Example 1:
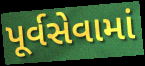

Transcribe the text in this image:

પૂર્વસેવામાં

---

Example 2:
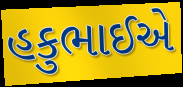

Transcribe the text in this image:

હકુભાઈએ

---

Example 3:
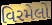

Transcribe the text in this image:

વિરમેલો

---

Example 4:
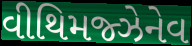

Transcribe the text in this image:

વીથિમજ્ઝેનેવ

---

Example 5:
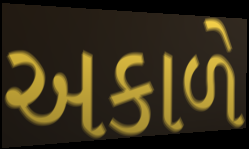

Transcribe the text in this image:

અકાળે